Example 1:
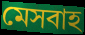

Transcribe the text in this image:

মেসবাহ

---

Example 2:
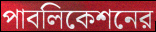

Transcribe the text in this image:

পাবলিকেশনের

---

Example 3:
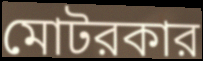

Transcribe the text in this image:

মোটরকার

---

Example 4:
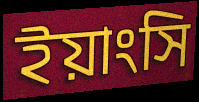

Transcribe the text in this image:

ইয়াংসি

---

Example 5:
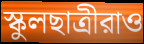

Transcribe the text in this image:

স্কুলছাত্রীরাও